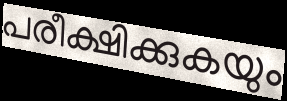
പരീക്ഷിക്കുകയും